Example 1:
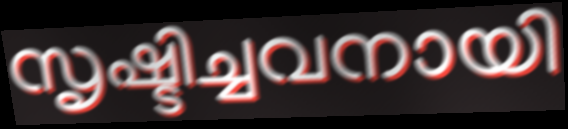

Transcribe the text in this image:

സൃഷ്ടിച്ചവനായി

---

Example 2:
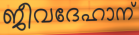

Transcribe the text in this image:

ജീവദേഹാന്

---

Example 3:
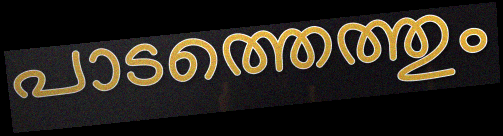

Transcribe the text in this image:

പാടത്തെത്തും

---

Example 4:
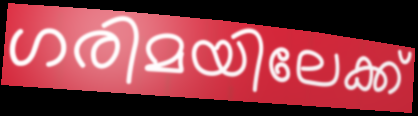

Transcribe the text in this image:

ഗരിമയിലേക്ക്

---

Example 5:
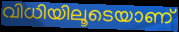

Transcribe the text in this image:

വിധിയിലൂടെയാണ്